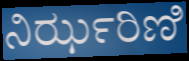
ನಿರ್ಝರಿಣಿ